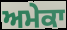
ਅਮੇਕਾ